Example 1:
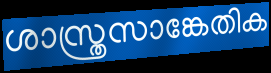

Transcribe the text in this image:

ശാസ്ത്രസാങ്കേതിക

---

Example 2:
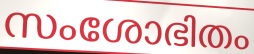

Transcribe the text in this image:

സംശോഭിതം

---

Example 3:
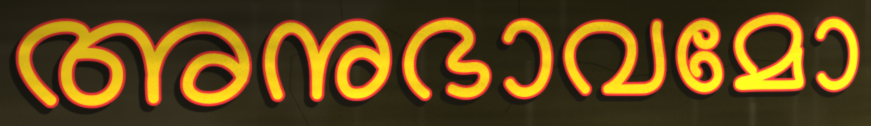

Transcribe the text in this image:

അനുഭാവമോ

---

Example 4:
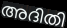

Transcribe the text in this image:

അദിതി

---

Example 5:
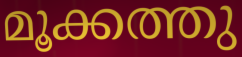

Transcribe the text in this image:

മൂക്കത്തു